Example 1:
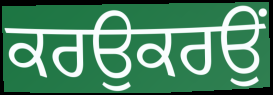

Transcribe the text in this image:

ਕਰਉਕਰਉਂ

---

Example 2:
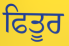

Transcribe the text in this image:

ਫਿਤੂਰ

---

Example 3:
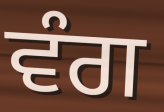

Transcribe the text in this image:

ਵੰਗ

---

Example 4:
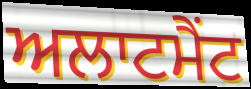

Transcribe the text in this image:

ਅਲਾਟਮੈਂਟ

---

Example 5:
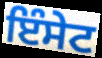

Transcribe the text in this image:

ਇੰਸੇਟ